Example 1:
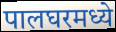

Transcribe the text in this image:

पालघरमध्ये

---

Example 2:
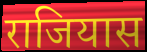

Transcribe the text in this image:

राजियास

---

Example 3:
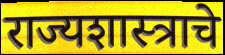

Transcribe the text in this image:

राज्यशास्त्राचे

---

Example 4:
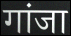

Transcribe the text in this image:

गांजा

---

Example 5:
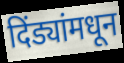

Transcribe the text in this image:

दिंड्यांमधून